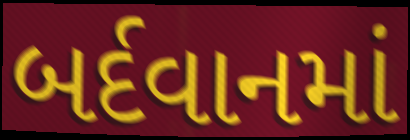
બર્દવાનમાં